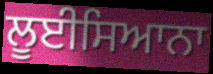
ਲੂਈਸਿਆਨਾ